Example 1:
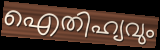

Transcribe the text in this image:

ഐതിഹ്യവും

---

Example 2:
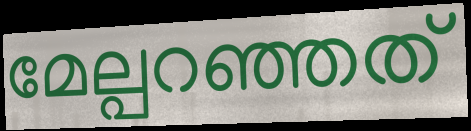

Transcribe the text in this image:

മേല്പറഞ്ഞത്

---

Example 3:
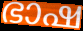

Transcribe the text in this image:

ഭാഷ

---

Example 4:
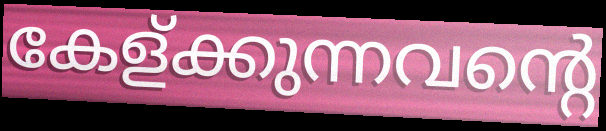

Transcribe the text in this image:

കേള്ക്കുന്നവന്റെ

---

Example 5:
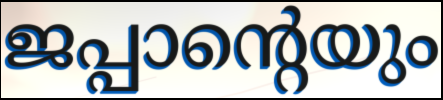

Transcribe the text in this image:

ജപ്പാന്റെയും